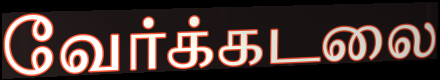
வேர்க்கடலை